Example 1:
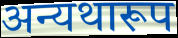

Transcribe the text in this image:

अन्यथारूप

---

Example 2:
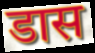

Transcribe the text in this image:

डास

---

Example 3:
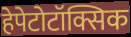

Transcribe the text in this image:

हेपेटोटॉक्सिक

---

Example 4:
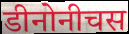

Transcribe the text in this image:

डीनोनीचस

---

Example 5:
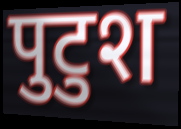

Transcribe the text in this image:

पुटुश